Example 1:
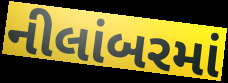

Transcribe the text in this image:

નીલાંબરમાં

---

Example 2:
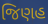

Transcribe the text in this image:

જિણહ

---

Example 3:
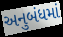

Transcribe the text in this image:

અનુબંધમાં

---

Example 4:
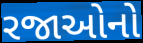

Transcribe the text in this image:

રજાઓનો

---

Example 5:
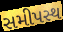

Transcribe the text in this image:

સમીપસ્થ